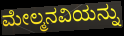
ಮೇಲ್ಮನವಿಯನ್ನು